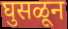
घुसळून